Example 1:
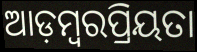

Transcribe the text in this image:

ଆଡ଼ମ୍ବରପ୍ରିୟତା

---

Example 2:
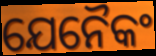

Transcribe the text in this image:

ଯେନୈକଂ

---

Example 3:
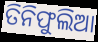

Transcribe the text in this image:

ତିନିଫୁଲିଆ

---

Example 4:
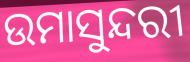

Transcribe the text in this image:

ଉମାସୁନ୍ଦରୀ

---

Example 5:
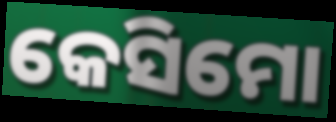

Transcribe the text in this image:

କେସିମୋ